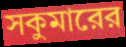
সকুমারের